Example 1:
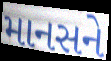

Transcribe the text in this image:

માનસને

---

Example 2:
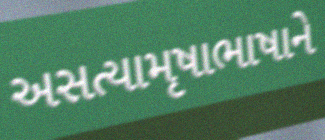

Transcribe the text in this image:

અસત્યામૃષાભાષાને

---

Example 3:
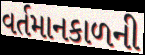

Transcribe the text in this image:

વર્તમાનકાળની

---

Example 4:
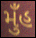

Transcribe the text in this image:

મુઁહ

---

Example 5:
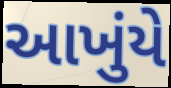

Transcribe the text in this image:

આખુંયે